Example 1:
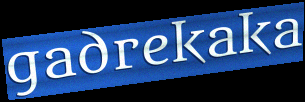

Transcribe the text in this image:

gadrekaka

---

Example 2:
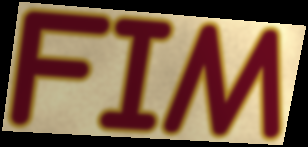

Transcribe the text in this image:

FIM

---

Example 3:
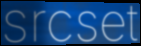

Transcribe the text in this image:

srcset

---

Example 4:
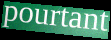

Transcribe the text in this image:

pourtant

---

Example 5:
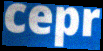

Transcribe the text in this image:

cepr